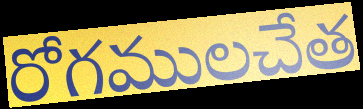
రోగములచేత